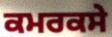
ਕਮਰਕਸੇ